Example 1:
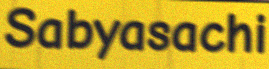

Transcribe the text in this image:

Sabyasachi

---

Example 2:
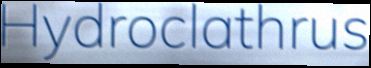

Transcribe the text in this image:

Hydroclathrus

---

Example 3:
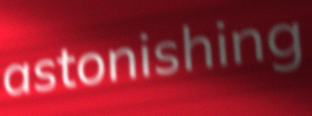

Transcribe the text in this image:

astonishing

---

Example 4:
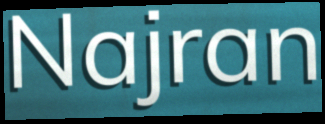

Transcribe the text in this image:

Najran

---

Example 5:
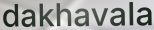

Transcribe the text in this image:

dakhavala